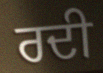
ਰਦੀ